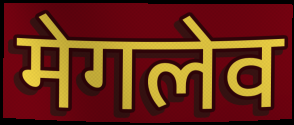
मेगलेव